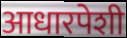
आधारपेशी